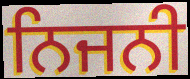
ਨਿਜਨੀ